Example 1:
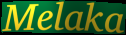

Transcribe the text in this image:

Melaka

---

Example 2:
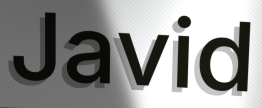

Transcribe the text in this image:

Javid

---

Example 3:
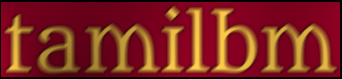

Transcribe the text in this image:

tamilbm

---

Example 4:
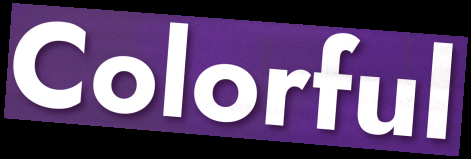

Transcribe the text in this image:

Colorful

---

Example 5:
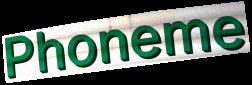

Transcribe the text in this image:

Phoneme